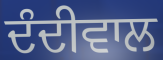
ਦੰਦੀਵਾਲ